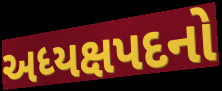
અધ્યક્ષપદનો